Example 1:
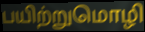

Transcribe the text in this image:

பயிற்றுமொழி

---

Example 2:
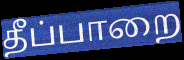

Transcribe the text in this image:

தீப்பாறை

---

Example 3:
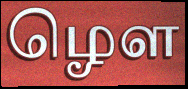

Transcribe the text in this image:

ழௌ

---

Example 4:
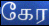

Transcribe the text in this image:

கேர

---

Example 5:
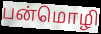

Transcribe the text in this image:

பன்மொழி